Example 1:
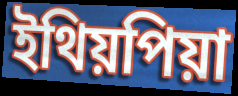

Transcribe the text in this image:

ইথিয়পিয়া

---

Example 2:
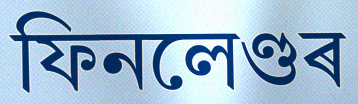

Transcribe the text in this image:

ফিনলেণ্ডৰ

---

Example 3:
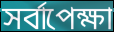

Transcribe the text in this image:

সৰ্বাপেক্ষা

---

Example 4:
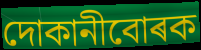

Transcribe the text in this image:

দোকানীবোৰক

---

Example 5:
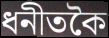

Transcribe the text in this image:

ধনীতকৈ